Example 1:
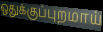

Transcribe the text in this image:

ஒதுக்குப்புறமாய்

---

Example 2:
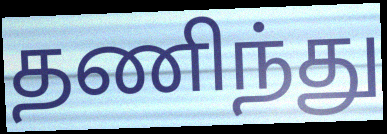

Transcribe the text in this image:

தணிந்து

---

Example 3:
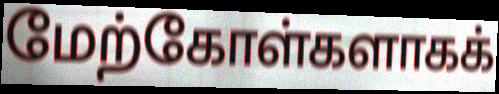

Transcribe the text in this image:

மேற்கோள்களாகக்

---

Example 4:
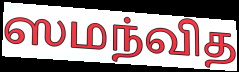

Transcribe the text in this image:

ஸமந்வித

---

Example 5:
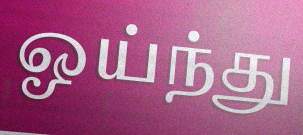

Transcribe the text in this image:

ஓய்ந்து